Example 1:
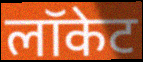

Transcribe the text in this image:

लॉकेट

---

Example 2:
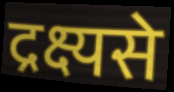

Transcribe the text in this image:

द्रक्ष्यसे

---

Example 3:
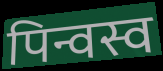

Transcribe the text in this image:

पिन्वस्व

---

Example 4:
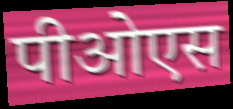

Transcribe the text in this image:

पीओएस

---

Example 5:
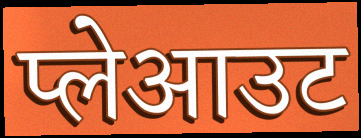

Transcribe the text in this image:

प्लेआउट